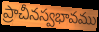
ప్రాచీనస్వభావము